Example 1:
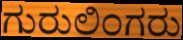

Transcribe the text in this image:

ಗುರುಲಿಂಗರು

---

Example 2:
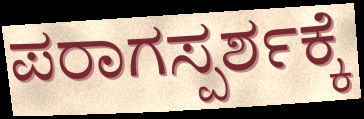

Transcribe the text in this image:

ಪರಾಗಸ್ಪರ್ಶಕ್ಕೆ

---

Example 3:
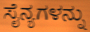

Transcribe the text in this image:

ಸೈನ್ಯಗಳನ್ನು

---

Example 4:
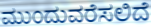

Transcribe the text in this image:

ಮುಂದುವರೆಸಲಿದೆ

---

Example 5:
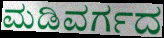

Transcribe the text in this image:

ಮಡಿವರ್ಗದ